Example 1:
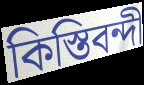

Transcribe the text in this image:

কিস্তিবন্দী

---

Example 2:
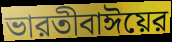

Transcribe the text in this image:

ভারতীবাঈয়ের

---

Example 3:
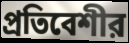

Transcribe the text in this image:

প্রতিবেশীর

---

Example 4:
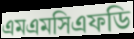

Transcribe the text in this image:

এমএমসিএফডি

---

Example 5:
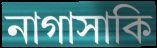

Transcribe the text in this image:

নাগাসাকি